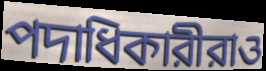
পদাধিকারীরাও